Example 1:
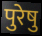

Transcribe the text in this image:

पुरेषु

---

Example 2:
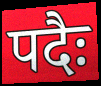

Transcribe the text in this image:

पदैः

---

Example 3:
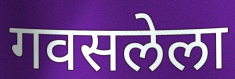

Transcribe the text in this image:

गवसलेला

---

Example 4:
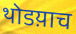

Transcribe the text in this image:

थोडय़ाच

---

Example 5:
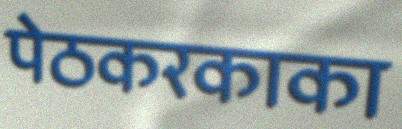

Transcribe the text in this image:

पेठकरकाका